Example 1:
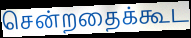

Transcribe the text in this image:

சென்றதைக்கூட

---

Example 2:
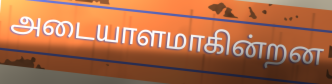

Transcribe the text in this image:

அடையாளமாகின்றன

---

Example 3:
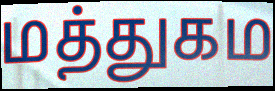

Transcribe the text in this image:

மத்துகம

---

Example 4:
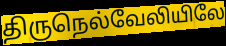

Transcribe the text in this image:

திருநெல்வேலியிலே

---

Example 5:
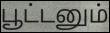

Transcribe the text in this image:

பூட்டனும்